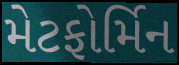
મેટફોર્મિન